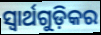
ସ୍ୱାର୍ଥଗୁଡ଼ିକର